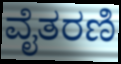
ವೈತರಣಿ